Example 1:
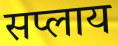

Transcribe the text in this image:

सप्लाय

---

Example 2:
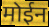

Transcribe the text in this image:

मोईन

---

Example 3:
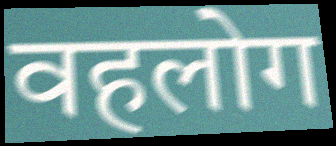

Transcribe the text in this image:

वहलोग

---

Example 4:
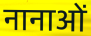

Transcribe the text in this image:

नानाओं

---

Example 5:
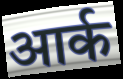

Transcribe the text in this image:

आर्क